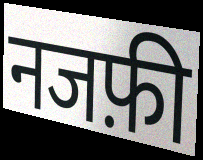
नजफ़ी